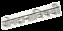
योगदानाविषयी